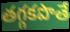
తగ్గకపొతే